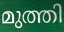
മുത്തി